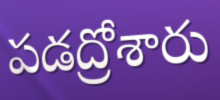
పడద్రోశారు